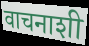
वाचनाशी